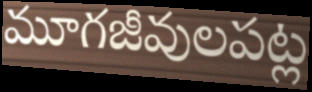
మూగజీవులపట్ల